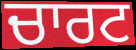
ਚਾਰਟ